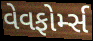
વેવફોર્મ્સ